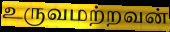
உருவமற்றவன்